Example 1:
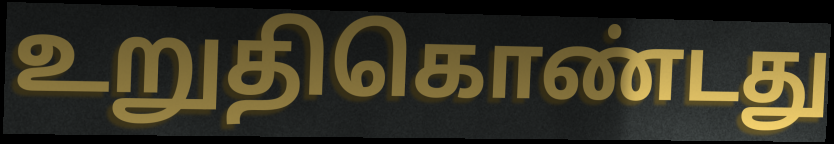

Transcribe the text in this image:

உறுதிகொண்டது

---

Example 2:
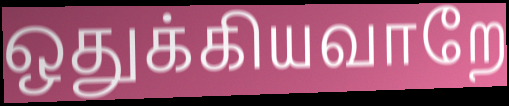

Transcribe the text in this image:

ஒதுக்கியவாறே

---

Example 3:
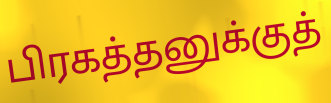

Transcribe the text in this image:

பிரகத்தனுக்குத்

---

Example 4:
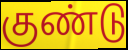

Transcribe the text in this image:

குண்டு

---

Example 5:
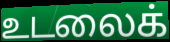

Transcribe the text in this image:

உடலைக்